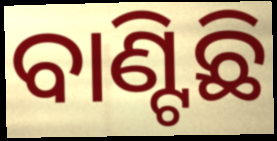
ବାଣ୍ଟିଛି